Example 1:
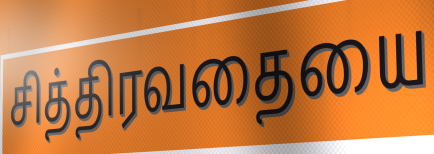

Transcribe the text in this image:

சித்திரவதையை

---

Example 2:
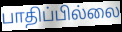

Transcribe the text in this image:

பாதிப்பில்லை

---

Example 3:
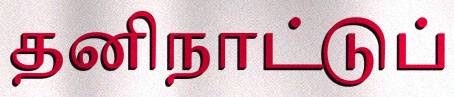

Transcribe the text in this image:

தனிநாட்டுப்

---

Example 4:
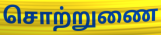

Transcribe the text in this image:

சொற்றுணை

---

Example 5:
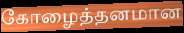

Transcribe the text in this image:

கோழைத்தனமான